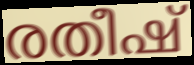
രതീഷ്